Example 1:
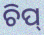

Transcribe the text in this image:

ଚିପ୍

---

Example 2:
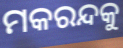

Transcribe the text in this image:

ମକରନ୍ଦକୁ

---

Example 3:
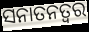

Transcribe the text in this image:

ସନାତନତ୍ୱର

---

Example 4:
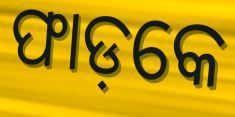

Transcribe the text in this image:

ଫାଡ଼କେ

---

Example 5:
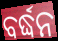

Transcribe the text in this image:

ବର୍ଦ୍ଧନ